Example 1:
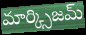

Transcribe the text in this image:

మార్క్సిజమ్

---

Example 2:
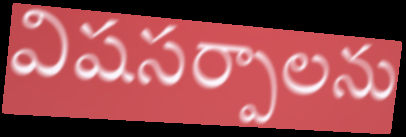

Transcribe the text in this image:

విషసర్పాలను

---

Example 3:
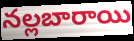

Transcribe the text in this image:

నల్లబారాయి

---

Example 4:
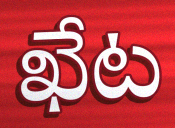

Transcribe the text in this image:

ఖేట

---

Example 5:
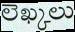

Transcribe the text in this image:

లెఖ్కలు